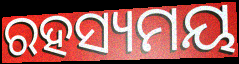
ରହସ୍ୟମୟ